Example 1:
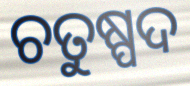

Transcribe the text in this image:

ଚତୁଷ୍ପଦ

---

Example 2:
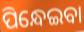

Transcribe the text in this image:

ପିନ୍ଧେଇବା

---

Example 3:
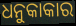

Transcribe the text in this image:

ଧନୁକାକାର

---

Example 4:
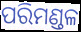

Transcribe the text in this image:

ପରିମଣ୍ଡଳ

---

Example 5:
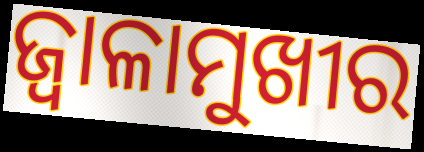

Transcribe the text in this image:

ଜ୍ୱାଳାମୁଖୀର